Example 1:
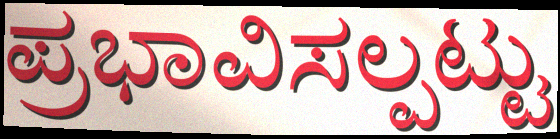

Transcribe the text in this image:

ಪ್ರಭಾವಿಸಲ್ಪಟ್ಟು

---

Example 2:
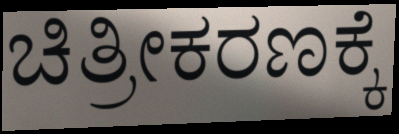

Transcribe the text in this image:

ಚಿತ್ರೀಕರಣಕ್ಕೆ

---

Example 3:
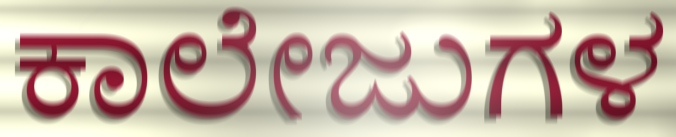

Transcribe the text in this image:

ಕಾಲೇಜುಗಳ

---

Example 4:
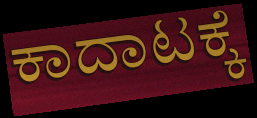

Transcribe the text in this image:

ಕಾದಾಟಕ್ಕೆ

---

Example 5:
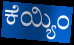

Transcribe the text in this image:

ಕೆಯ್ಯಿಂ